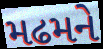
મઢમને